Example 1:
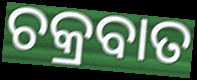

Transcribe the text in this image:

ଚକ୍ରବାତ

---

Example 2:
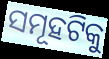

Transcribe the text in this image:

ସମୂହଟିକୁ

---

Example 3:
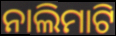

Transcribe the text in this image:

ନାଲିମାଟି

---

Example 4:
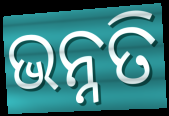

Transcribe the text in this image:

ଭନ୍ନତି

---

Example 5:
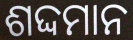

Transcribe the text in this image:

ଶଦ୍ଦମାନ